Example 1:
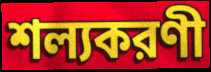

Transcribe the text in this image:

শল্যকরণী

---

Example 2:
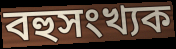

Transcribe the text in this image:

বহুসংখ্যক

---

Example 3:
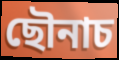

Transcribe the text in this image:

ছৌনাচ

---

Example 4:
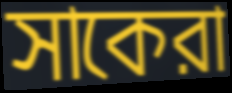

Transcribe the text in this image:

সাকেরা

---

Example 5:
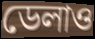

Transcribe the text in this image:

ডেলাও